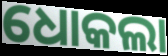
ଧୋକଲା